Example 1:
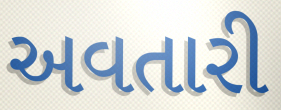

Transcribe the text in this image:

અવતારી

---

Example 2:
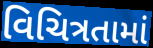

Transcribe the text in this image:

વિચિત્રતામાં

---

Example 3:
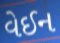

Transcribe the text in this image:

વેઈન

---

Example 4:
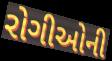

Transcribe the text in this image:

રોગીઓની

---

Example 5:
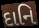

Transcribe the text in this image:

દાનિ